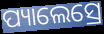
ପ୍ୟାଲେସ୍ରେ